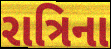
રાત્રિના